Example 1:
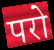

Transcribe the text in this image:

परो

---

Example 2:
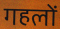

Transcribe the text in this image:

गहलों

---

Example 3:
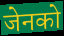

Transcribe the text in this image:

जेनको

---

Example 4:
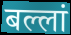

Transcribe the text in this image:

बल्लां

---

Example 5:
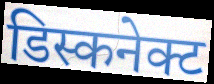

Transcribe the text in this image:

डिस्कनेक्ट